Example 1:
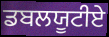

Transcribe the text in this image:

ਡਬਲਯੂਟੀਏ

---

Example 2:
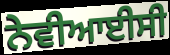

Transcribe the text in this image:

ਨੇਵੀਆਈਸੀ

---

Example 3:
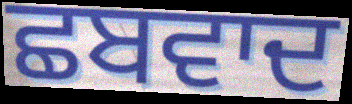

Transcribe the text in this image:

ਛਬਵਾਦ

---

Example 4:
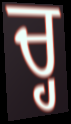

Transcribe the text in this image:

ਚ੍ਹ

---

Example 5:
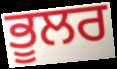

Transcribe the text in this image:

ਭੂਲਰ